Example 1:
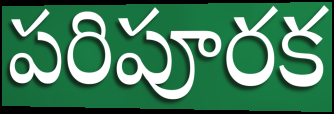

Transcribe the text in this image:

పరిపూరక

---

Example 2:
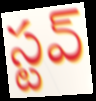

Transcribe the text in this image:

స్టవ్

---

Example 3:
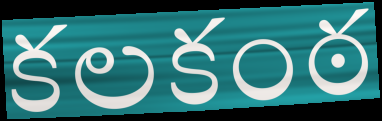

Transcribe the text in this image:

కలకంఠ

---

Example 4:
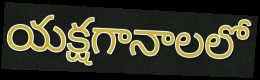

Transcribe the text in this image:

యక్షగానాలలో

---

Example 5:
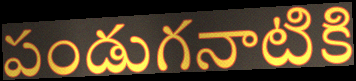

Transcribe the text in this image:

పండుగనాటికి